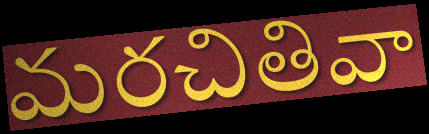
మరచితివా